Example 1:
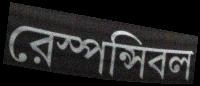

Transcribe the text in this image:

রেস্পন্সিবল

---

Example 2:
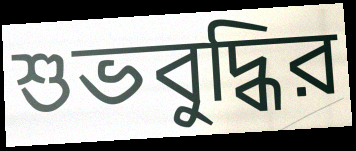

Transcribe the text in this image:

শুভবুদ্ধির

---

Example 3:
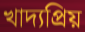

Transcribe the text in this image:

খাদ্যপ্রিয়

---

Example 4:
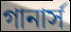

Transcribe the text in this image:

গানার্স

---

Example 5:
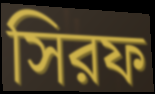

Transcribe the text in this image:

সিরফ